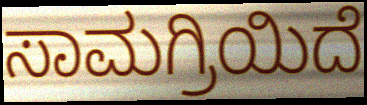
ಸಾಮಗ್ರಿಯಿದೆ